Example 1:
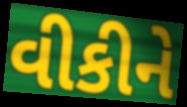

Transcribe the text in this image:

વીકીને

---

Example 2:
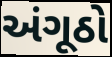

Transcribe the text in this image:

અંગૂઠો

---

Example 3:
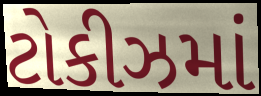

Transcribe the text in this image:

ટોકીઝમાં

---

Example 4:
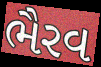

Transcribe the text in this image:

ભૈરવ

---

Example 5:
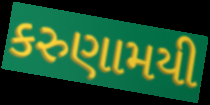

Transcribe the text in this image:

કરુણામયી